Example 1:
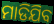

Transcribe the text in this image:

ମାଡିଯିବ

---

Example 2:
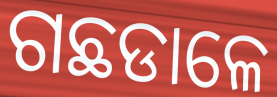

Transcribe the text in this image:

ଗଛଡାଳେ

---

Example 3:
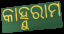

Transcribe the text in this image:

କାହ୍ନୁରାମ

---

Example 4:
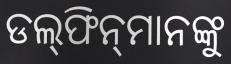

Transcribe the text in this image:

ଡଲ୍‍ଫିନ୍‍ମାନଙ୍କୁ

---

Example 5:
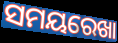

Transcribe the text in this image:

ସମୟରେଖା